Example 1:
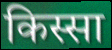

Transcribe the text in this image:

किस्सा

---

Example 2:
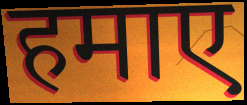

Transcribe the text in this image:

हमाए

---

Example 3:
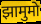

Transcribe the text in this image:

झामुमो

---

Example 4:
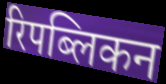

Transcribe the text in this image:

रिपब्लिकन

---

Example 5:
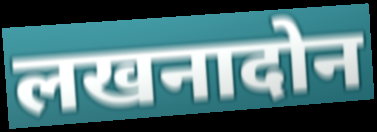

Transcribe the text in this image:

लखनादोन